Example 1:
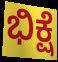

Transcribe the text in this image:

ಭಿಕ್ಷೆ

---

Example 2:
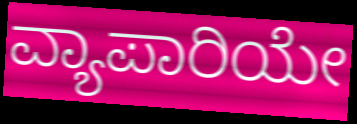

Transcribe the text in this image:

ವ್ಯಾಪಾರಿಯೇ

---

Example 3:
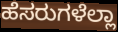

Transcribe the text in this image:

ಹೆಸರುಗಳೆಲ್ಲಾ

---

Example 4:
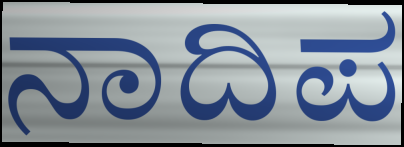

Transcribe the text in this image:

ನಾದಿಪ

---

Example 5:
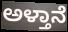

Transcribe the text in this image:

ಅಳ್ತಾನೆ